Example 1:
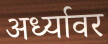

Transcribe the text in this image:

अर्ध्यावर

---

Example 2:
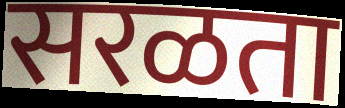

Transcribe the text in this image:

सरळता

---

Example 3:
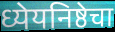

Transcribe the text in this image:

ध्येयनिष्ठेचा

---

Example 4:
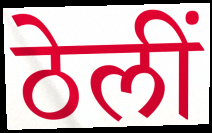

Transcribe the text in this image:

ठेलीं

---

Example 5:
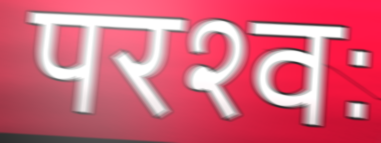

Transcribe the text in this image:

परश्वः